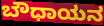
ಬೌಧಾಯನ